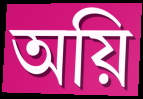
অয়ি